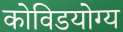
कोविडयोग्य